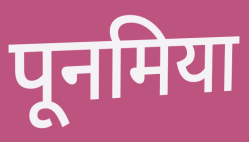
पूनमिया